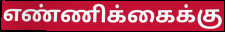
எண்ணிக்கைக்கு